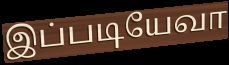
இப்படியேவா